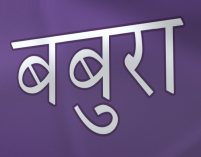
बबुरा